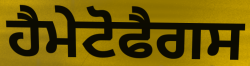
ਹੈਮੇਟੋਫੈਗਸ